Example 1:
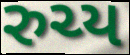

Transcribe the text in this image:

રુચ્ય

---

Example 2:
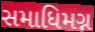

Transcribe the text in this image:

સમાધિમગ્ન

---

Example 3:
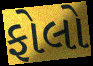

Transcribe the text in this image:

ફોલો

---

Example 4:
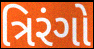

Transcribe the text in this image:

ત્રિરંગો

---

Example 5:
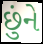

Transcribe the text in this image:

છુંને